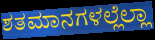
ಶತಮಾನಗಳಲ್ಲೆಲ್ಲಾ